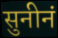
सुनीनं